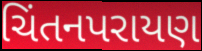
ચિંતનપરાયણ